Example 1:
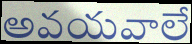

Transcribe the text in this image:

అవయవాలే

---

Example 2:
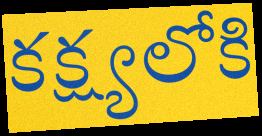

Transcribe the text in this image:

కక్ష్యలోకి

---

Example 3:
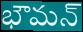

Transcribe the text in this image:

భౌమన్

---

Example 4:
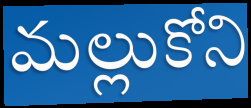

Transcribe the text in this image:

మల్లుకోని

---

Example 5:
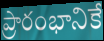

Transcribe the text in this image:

ప్రారంభానికే